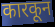
कारकून